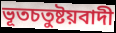
ভূতচতুষ্টয়বাদী